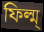
ফিল্ম্